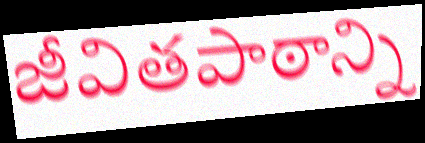
జీవితపాఠాన్ని